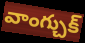
వాంగ్చుక్